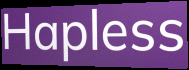
Hapless